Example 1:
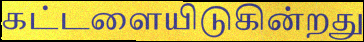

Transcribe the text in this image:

கட்டளையிடுகின்றது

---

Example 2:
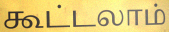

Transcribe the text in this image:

கூட்டலாம்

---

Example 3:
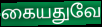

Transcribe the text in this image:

கையதுவே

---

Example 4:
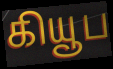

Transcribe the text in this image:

கியூப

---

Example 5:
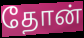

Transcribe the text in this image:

தோன்